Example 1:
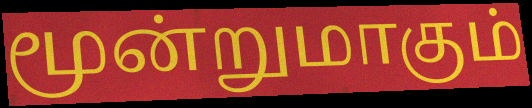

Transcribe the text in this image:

மூன்றுமாகும்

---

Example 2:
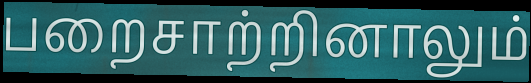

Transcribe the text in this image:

பறைசாற்றினாலும்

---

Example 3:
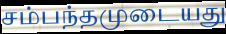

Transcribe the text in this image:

சம்பந்தமுடையது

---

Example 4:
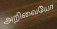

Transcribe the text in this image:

அறிவையோ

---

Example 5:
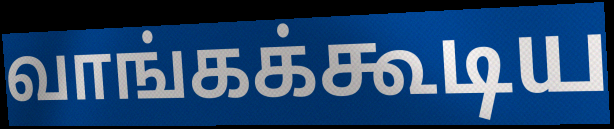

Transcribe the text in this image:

வாங்கக்கூடிய